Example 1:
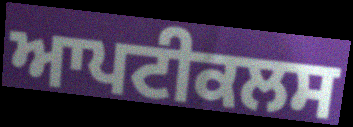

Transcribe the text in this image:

ਆਪਟੀਕਲਸ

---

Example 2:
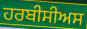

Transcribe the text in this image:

ਹਰਬੀਸੀਅਸ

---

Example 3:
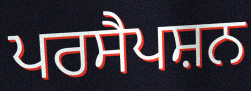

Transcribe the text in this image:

ਪਰਸੈਪਸ਼ਨ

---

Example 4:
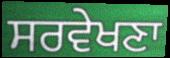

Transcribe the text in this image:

ਸਰਵੇਖਣਾ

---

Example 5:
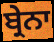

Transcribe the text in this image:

ਬ੍ਰੇਨਾ